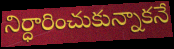
నిర్ధారించుకున్నాకనే